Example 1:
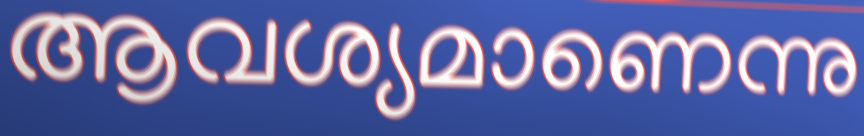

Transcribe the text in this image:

ആവശ്യമാണെന്നു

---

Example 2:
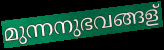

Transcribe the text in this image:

മുന്നനുഭവങ്ങള്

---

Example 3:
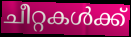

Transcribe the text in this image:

ചീറ്റകൾക്ക്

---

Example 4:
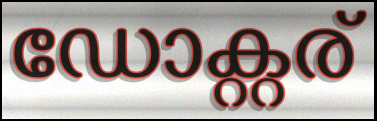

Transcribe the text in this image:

ഡോക്റ്റര്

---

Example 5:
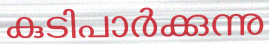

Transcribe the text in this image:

കുടിപാർക്കുന്നു